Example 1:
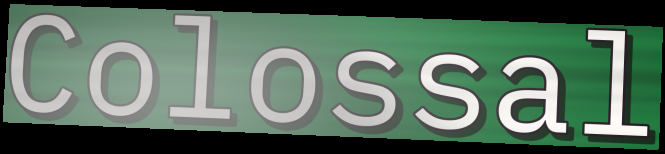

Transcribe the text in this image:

Colossal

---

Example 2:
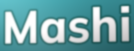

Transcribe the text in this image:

Mashi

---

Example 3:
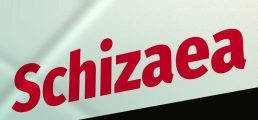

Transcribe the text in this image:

Schizaea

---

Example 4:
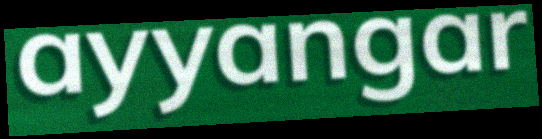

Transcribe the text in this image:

ayyangar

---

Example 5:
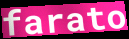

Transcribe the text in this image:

farato